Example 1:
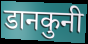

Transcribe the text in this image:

डानकुनी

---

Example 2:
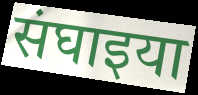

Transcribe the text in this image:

संघाइया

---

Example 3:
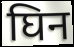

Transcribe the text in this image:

घिन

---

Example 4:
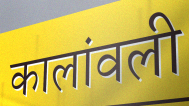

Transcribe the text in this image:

कालांवली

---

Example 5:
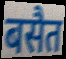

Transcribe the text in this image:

बसैत